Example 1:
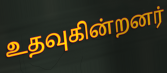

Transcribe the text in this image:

உதவுகின்றனர்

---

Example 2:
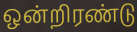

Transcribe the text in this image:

ஒன்றிரண்டு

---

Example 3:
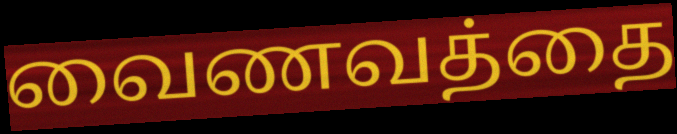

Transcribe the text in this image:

வைணவத்தை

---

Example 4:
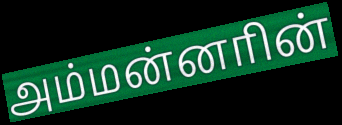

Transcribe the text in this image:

அம்மன்னரின்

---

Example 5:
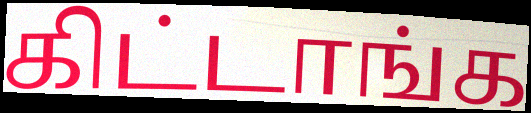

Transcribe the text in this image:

கிட்டாங்க